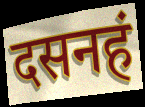
दसनहं